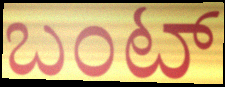
ಬಂಟ್